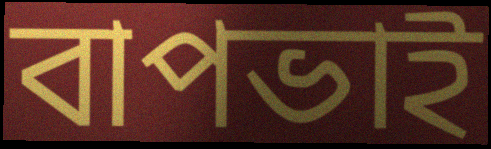
বাপভাই